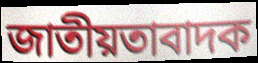
জাতীয়তাবাদক